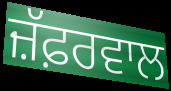
ਜ਼ੱਫ਼ਰਵਾਲ